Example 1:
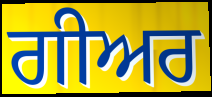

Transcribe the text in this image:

ਗੀਅਰ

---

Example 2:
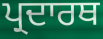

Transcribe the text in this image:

ਪ੍ਰਦਾਰਥ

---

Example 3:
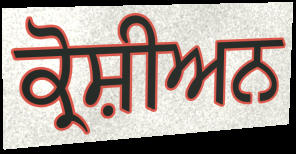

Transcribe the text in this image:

ਕ੍ਰੋਸ਼ੀਅਨ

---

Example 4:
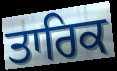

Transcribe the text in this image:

ਤਾਰਿਕ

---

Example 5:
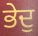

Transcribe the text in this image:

ਭੇਦੁ